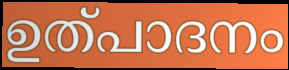
ഉത്പാദനം